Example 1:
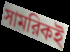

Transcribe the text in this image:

সামরিকই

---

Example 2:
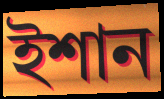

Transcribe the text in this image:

ইশান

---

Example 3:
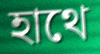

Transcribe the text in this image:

হাথে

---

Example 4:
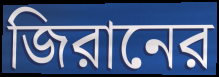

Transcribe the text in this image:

জিরানের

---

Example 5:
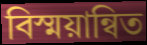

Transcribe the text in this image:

বিস্ময়ান্বিত